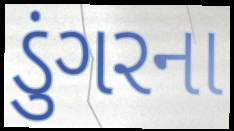
ડુંગરના